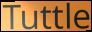
Tuttle